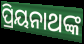
ପ୍ରିୟନାଥଙ୍କ